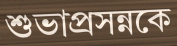
শুভাপ্রসন্নকে